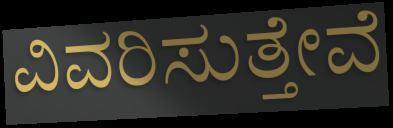
ವಿವರಿಸುತ್ತೇವೆ